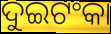
ଦୁଇଟଂକା